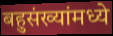
बहुसंख्यांमध्ये